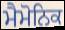
ਮੈਮੋਨਿਕ